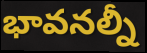
భావనల్నీ